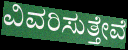
ವಿವರಿಸುತ್ತೇವೆ